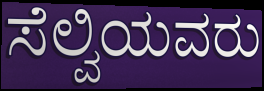
ಸೆಲ್ವಿಯವರು